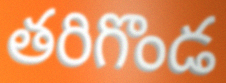
తరిగొండ